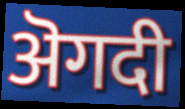
ऄगदी